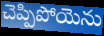
చెప్పిపోయెను